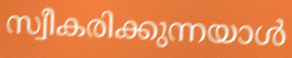
സ്വീകരിക്കുന്നയാൾ